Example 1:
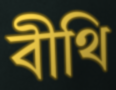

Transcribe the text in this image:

বীথি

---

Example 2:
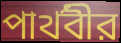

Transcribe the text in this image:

পার্থবীর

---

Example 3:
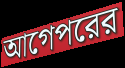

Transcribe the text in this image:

আগেপরের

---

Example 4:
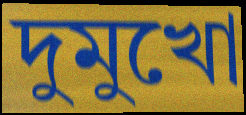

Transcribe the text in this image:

দুমুখো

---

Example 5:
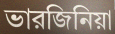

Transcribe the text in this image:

ভারজিনিয়া